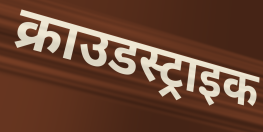
क्राउडस्ट्राइक